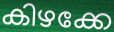
കിഴക്കേ